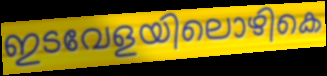
ഇടവേളയിലൊഴികെ